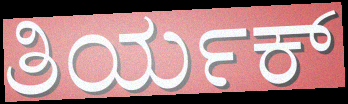
ತಿರ್ಯಕ್